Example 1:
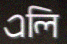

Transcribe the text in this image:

এলি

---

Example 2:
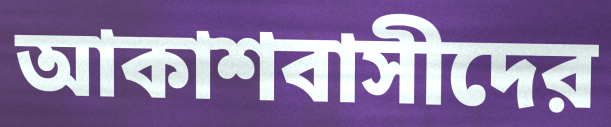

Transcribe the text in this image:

আকাশবাসীদের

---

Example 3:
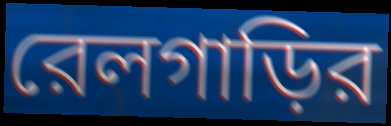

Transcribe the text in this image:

রেলগাড়ির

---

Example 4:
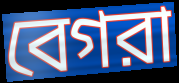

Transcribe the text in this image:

বেগরা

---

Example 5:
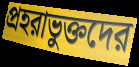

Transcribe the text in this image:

প্রহরাভুক্তদের